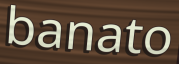
banato